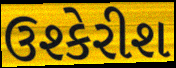
ઉશ્કેરીશ